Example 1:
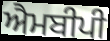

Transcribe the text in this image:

ਐਮਬੀਪੀ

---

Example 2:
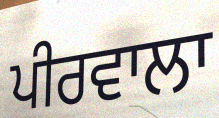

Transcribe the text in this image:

ਪੀਰਵਾਲਾ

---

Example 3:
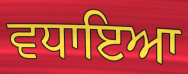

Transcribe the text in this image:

ਵਧਾਇਆ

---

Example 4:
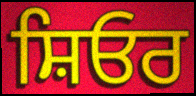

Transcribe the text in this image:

ਸ਼ਿਓਰ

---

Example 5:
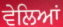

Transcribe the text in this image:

ਵੇਲਿਆਂ